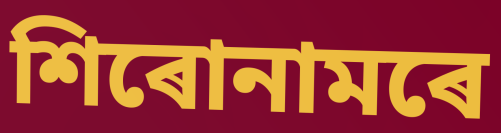
শিৰোনামৰে